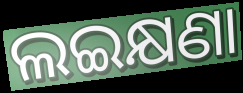
ଲଇକ୍ଷଣା